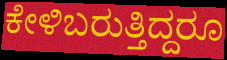
ಕೇಳಿಬರುತ್ತಿದ್ದರೂ